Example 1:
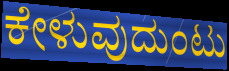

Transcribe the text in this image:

ಕೇಳುವುದುಂಟು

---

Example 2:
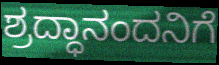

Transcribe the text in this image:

ಶ್ರದ್ಧಾನಂದನಿಗೆ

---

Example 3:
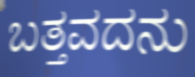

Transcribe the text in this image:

ಬತ್ತವದನು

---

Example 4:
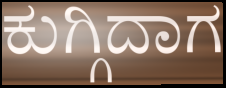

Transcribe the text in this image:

ಕುಗ್ಗಿದಾಗ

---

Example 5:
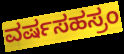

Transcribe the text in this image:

ವರ್ಷಸಹಸ್ರಂ